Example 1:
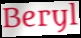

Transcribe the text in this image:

Beryl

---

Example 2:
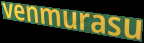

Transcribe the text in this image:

venmurasu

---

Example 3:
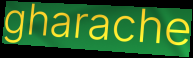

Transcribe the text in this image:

gharache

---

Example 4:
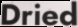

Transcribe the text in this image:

Dried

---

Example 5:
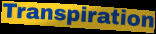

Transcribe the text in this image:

Transpiration